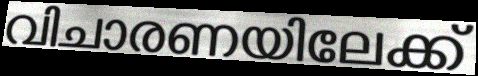
വിചാരണയിലേക്ക്